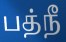
பத்நீ